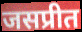
जसप्रीत